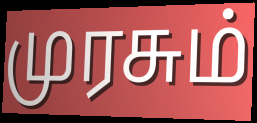
முரசும்